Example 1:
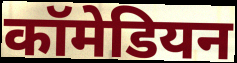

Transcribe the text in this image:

कॉमेडियन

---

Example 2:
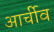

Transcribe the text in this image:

आर्चीव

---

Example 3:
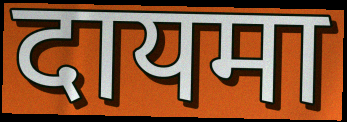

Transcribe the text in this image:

दायमा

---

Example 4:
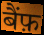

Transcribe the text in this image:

बैंफ़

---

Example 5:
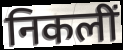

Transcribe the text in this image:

निकलीं